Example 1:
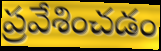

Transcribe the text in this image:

ప్రవేశించడం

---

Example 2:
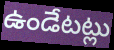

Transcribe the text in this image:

ఉండేటట్లు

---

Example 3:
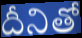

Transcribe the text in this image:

దీనితో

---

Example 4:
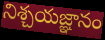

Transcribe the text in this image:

నిశ్చయజ్ఞానం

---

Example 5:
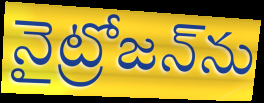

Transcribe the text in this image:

నైట్రోజన్‌ను